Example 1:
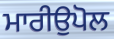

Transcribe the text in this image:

ਮਾਰੀਉਪੋਲ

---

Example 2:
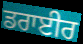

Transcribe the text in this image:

ਡਰਾਈਰ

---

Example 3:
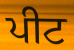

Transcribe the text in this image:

ਪੀਟ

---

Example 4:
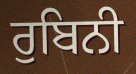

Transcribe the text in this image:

ਰੁਬਿਨੀ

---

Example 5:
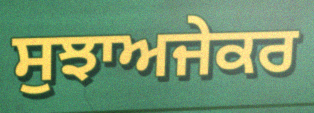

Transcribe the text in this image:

ਸੁਝਾਅਜੇਕਰ